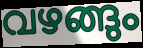
വഴങ്ങും